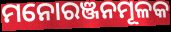
ମନୋରଞ୍ଜନମୂଳକ